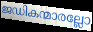
ജഡികന്മാരല്ലോ